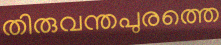
തിരുവന്തപുരത്തെ